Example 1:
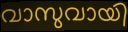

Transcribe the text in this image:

വാസുവായി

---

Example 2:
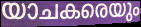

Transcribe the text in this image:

യാചകരെയും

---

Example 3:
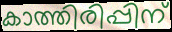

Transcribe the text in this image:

കാത്തിരിപ്പിന്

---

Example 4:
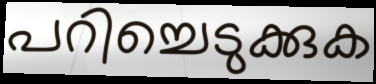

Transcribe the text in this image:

പറിച്ചെടുക്കുക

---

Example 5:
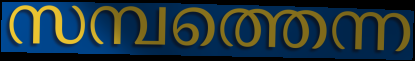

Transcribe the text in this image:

സമ്പത്തെന്ന